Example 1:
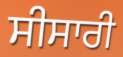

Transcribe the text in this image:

ਸੀਸਾਰੀ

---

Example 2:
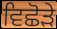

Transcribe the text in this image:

ਵਿਛੋੜੇ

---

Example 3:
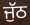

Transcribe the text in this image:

ਜੁੱਠ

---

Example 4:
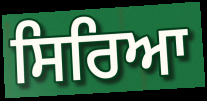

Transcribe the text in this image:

ਸਿਰਿਆ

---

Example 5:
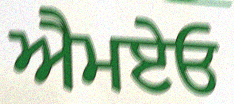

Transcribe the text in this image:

ਐਮਏਓ